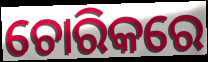
ଚୋରିକରେ